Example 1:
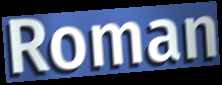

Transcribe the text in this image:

Roman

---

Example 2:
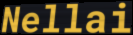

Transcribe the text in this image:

Nellai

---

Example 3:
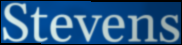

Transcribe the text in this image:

Stevens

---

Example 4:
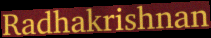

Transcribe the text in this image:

Radhakrishnan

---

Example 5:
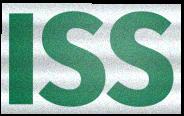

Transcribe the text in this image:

ISS